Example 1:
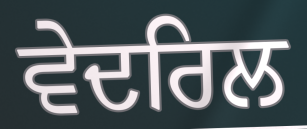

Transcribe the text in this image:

ਵੇਦਰਿਲ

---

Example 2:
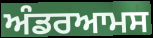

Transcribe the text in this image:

ਅੰਡਰਆਮਸ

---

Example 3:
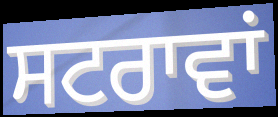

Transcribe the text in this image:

ਸਟਰਾਵਾਂ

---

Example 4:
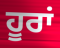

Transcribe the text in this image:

ਹੂਰਾਂ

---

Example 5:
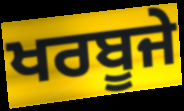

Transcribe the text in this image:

ਖਰਬੂਜੇ